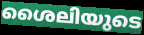
ശൈലിയുടെ